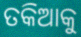
ତକିଆକୁ